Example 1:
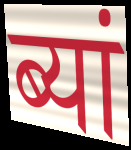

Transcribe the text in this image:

ब्यां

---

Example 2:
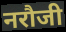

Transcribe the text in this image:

नरौजी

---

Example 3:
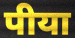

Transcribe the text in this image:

पीया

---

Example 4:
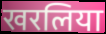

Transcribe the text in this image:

खरलिया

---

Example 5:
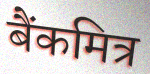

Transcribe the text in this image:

बैंकमित्र